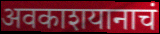
अवकाशयानाचं